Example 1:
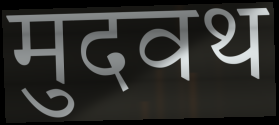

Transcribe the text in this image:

मुदवथ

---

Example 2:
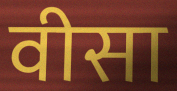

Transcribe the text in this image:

वीसा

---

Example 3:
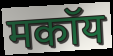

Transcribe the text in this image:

मकॉय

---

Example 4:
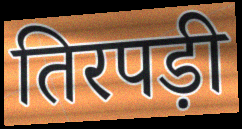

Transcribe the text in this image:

तिरपड़ी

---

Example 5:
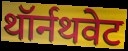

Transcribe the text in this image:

थॉर्नथवेट